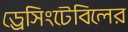
ড্রেসিংটেবিলের